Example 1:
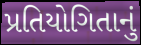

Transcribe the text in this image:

પ્રતિયોગિતાનું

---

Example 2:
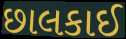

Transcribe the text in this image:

છાલકાઈ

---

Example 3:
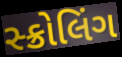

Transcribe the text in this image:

સ્ક્રોલિંગ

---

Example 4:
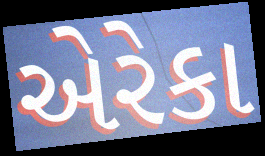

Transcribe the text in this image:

એરેકા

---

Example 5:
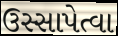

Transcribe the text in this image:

ઉસ્સાપેત્વા